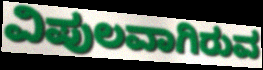
ವಿಪುಲವಾಗಿರುವ